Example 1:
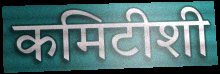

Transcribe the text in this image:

कमिटीशी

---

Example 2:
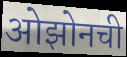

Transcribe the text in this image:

ओझोनची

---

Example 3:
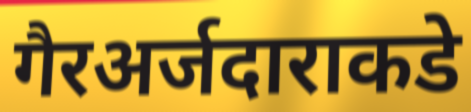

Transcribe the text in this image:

गैरअर्जदाराकडे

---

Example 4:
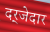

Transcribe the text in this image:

दर्जेदार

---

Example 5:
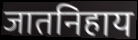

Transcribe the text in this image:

जातनिहाय